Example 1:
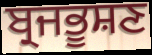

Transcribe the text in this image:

ਬ੍ਰਜਭੂਸ਼ਣ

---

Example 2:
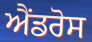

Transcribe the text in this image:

ਐਂਡਰੋਸ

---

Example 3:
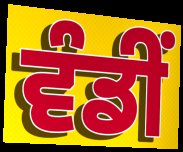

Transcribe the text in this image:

ਵੰਡੀਂ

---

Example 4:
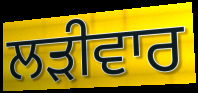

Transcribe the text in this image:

ਲੜੀਵਾਰ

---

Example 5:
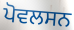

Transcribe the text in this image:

ਪੋਵਲਸਨ